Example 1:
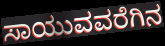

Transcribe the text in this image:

ಸಾಯುವವರೆಗಿನ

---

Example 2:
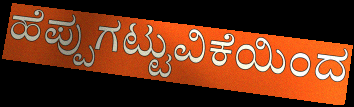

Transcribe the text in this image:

ಹೆಪ್ಪುಗಟ್ಟುವಿಕೆಯಿಂದ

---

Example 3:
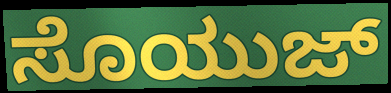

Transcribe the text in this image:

ಸೊಯುಜ್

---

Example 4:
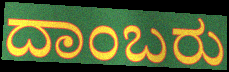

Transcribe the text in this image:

ದಾಂಬರು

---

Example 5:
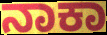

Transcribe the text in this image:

ನಾಕಾ